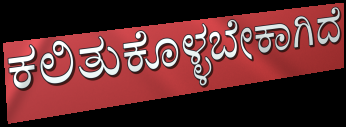
ಕಲಿತುಕೊಳ್ಳಬೇಕಾಗಿದೆ